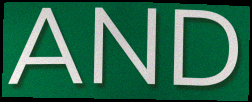
AND